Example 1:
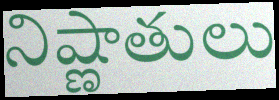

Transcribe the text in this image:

నిష్ణాతులు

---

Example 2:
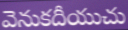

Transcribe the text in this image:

వెనుకదీయుచు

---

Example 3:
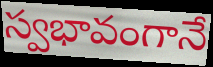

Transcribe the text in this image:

స్వభావంగానే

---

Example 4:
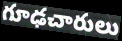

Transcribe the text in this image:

గూఢచారులు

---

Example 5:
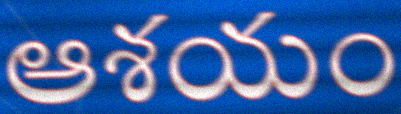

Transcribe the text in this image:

ఆశయం